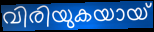
വിരിയുകയായ്